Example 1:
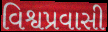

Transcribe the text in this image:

વિશ્વપ્રવાસી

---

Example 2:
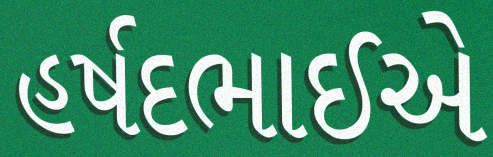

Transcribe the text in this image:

હર્ષદભાઈએ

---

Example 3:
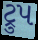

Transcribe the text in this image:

ટ્રુપ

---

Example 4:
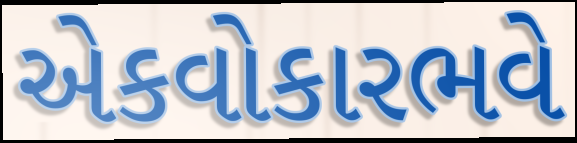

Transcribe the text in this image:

એકવોકારભવે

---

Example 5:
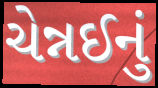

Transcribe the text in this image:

ચેન્નઈનું